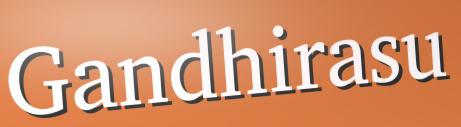
Gandhirasu